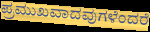
ಪ್ರಮುಖವಾದವುಗಳೆಂದರೆ